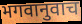
भगवानुवाच